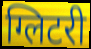
ग्लिटरी